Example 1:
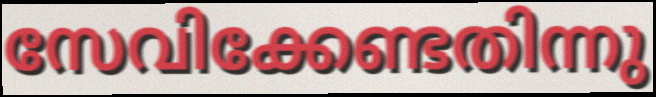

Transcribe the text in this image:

സേവിക്കേണ്ടതിന്നു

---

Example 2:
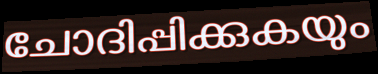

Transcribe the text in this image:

ചോദിപ്പിക്കുകയും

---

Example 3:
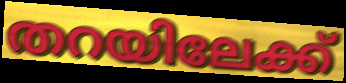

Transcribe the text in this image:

തറയിലേക്ക്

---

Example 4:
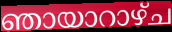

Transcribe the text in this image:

ഞായാറാഴ്ച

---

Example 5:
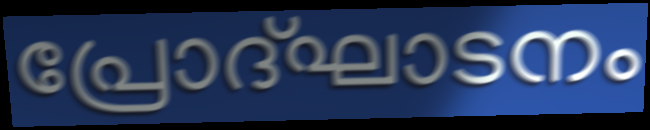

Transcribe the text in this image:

പ്രോദ്ഘാടനം